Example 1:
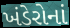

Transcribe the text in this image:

ખંડેરોનાં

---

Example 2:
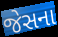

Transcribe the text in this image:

જેસના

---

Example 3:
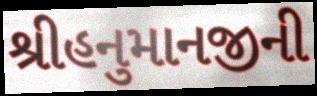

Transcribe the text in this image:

શ્રીહનુમાનજીની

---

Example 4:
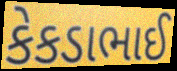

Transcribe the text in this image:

કેકડાભાઈ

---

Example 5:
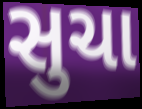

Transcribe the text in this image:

સુચા